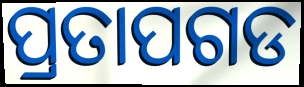
ପ୍ରତାପଗଡ